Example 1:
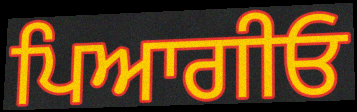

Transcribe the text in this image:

ਪਿਆਗੀਓ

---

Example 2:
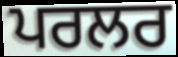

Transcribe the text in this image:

ਪਰਲਰ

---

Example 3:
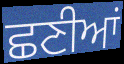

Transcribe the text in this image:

ਛਣੀਆਂ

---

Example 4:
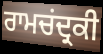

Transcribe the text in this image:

ਰਾਮਚਂਦ੍ਰਕੀ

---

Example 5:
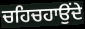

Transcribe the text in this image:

ਚਹਿਚਹਾਉਂਦੇ